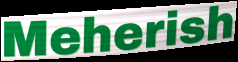
Meherish